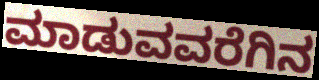
ಮಾಡುವವರೆಗಿನ